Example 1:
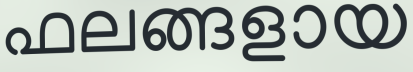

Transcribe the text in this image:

ഫലങ്ങളായ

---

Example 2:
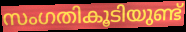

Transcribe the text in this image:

സംഗതികൂടിയുണ്ട്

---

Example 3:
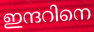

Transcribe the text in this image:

ഇന്ദറിനെ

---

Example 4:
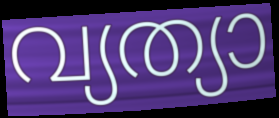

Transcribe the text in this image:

വ്യത്യാ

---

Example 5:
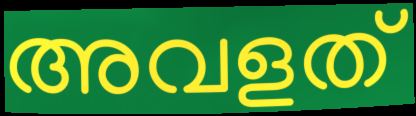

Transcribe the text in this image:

അവളത്